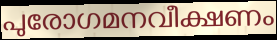
പുരോഗമനവീക്ഷണം